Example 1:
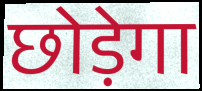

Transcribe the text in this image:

छोड़ेगा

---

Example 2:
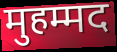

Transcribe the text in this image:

मुहम्‍मद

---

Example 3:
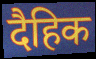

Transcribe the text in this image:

दैहिक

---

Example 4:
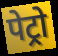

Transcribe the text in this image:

पेट्रो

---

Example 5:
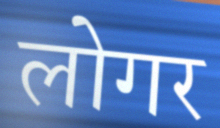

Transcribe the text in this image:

लोगर